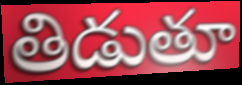
తిడుతూ